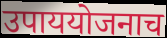
उपाययोजनाच